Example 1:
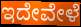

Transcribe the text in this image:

ಇದೇವೇಳೆ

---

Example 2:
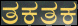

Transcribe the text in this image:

ತಕತಕ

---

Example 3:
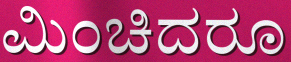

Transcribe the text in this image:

ಮಿಂಚಿದರೂ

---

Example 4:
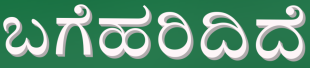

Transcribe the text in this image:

ಬಗೆಹರಿದಿದೆ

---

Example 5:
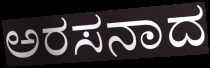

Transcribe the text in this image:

ಅರಸನಾದ